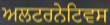
ਅਲਟਰਨੇਟਿਵਸ